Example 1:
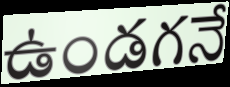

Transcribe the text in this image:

ఉండగనే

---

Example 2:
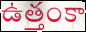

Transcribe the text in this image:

ఉత్తంకా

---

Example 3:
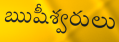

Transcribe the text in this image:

ఋషీశ్వరులు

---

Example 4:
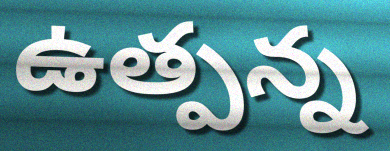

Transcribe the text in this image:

ఉత్పన్న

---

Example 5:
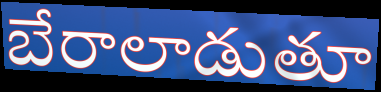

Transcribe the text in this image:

బేరాలాడుతూ